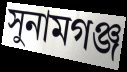
সুনামগঞ্জ